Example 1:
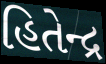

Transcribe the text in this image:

હિતેન્દ્ર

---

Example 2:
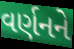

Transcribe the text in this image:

વર્ણનને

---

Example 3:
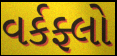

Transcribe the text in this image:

વર્કફ્લો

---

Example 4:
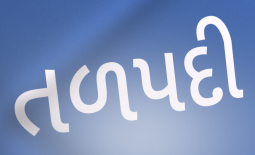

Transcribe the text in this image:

તળપદી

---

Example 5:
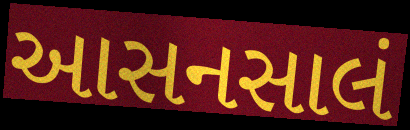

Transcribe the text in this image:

આસનસાલં